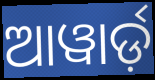
ଆୱାର୍ଡ଼